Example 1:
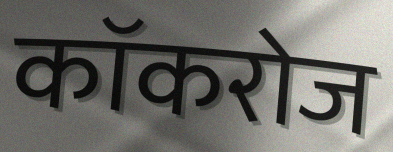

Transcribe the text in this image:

कॉकरोज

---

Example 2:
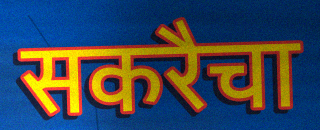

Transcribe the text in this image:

सकरैचा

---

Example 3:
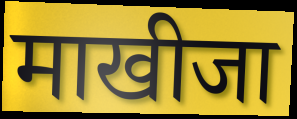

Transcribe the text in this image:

माखीजा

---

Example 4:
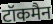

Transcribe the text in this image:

टॉकमैन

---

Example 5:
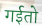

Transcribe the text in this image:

गईतो